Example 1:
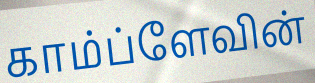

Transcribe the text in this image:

காம்ப்ளேவின்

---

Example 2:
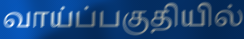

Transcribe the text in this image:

வாய்ப்பகுதியில்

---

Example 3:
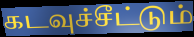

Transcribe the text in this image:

கடவுச்சீட்டும்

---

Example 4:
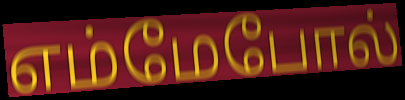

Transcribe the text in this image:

எம்மேபோல்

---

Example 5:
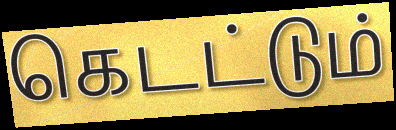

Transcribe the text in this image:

கெடட்டும்